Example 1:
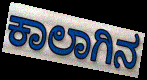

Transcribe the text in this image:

ಕಾಲಾಗಿನ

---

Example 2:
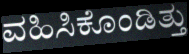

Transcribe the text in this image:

ವಹಿಸಿಕೊಂಡಿತ್ತು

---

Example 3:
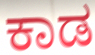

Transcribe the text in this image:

ಕಾಡ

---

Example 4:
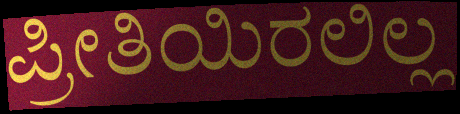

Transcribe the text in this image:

ಪ್ರೀತಿಯಿರಲಿಲ್ಲ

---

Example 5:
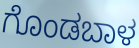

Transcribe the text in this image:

ಗೊಂಡಬಾಳ